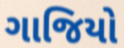
ગાજિયો